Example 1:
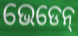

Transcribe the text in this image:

ଭେଡେନ୍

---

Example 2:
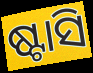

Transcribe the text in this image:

ଷ୍ଟାସି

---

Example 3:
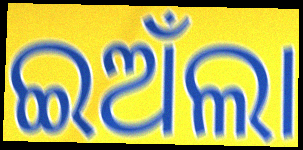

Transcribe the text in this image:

ଇଅଁଲା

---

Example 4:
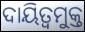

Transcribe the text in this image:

ଦାୟିତ୍ୱମୁକ୍ତ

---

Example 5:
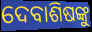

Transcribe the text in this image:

ଦେବାଶିଷଙ୍କୁ